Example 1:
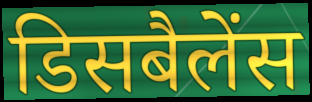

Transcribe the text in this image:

डिसबैलेंस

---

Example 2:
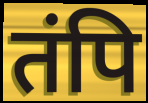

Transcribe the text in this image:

तंपि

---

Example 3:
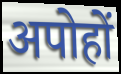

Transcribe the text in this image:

अपोहों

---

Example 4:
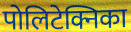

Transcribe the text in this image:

पोलिटेक्निका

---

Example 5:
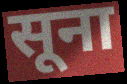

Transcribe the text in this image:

सूना